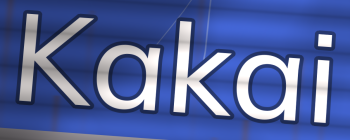
Kakai